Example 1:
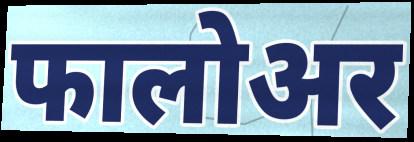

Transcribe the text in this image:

फालोअर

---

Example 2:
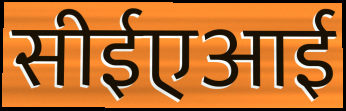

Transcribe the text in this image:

सीईएआई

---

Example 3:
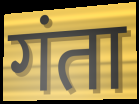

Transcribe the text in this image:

गंता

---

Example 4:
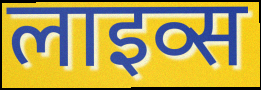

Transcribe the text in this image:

लाइव्स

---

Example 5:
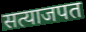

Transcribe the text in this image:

सत्याजपत